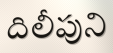
దిలీపుని